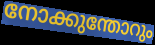
നോക്കുന്തോറും